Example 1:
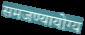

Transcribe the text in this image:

समजण्यायोग्य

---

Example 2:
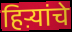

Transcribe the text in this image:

हिऱ्‍यांचे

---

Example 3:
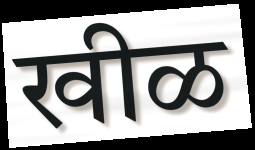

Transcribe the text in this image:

खीळ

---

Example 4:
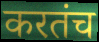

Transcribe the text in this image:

करतंच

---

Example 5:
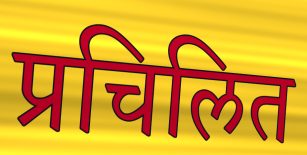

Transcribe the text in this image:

प्रचिलित